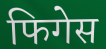
फिगेस